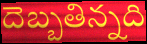
దెబ్బతిన్నది